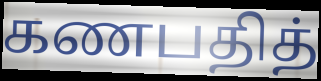
கணபதித்